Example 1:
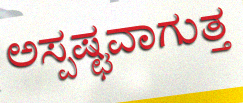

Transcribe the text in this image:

ಅಸ್ಪಷ್ಟವಾಗುತ್ತ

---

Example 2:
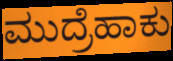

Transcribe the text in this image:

ಮುದ್ರೆಹಾಕು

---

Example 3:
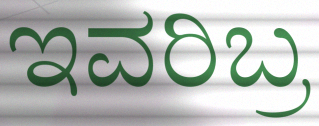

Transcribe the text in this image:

ಇವರಿಬ್ರ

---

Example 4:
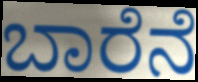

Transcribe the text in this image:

ಬಾರೆನೆ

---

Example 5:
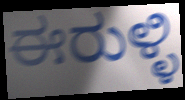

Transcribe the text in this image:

ಈರುಳ್ಳಿ